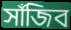
সাঁজিব